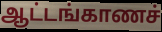
ஆட்டங்காணச்